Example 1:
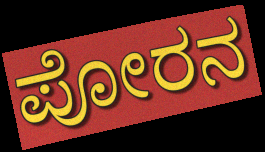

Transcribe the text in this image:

ಪೋರನ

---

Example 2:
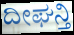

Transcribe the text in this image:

ದೀಘನ್ತಿ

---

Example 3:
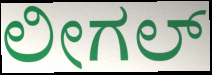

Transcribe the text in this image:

ಲೀಗಲ್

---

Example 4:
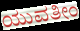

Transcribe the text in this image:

ಯುವತೀಂ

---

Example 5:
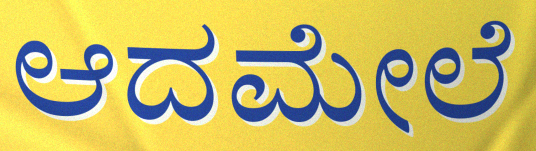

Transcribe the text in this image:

ಆದಮೇಲೆ